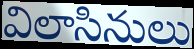
విలాసినులు